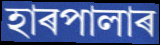
হাৰপালাৰ